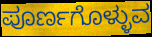
ಪೂರ್ಣಗೊಳ್ಳುವ